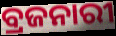
ବ୍ରଜନାରୀ